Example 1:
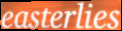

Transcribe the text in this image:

easterlies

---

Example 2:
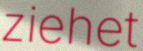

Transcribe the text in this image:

ziehet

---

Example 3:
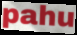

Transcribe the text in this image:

pahu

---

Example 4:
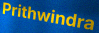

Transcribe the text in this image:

Prithwindra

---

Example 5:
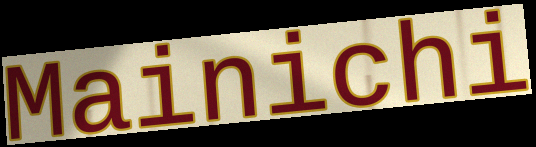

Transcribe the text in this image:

Mainichi